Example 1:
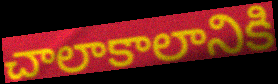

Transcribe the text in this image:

చాలాకాలానికి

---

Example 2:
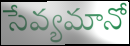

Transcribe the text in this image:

సేవ్యమానో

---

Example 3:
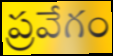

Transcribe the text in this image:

ప్రవేగం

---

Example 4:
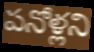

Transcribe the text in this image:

పనోళ్లని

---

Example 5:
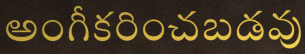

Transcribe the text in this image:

అంగీకరించబడవు